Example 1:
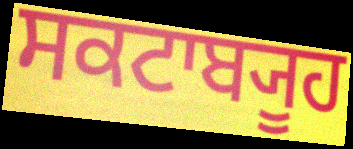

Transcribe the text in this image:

ਸਕਟਾਬ੍ਯੂਹ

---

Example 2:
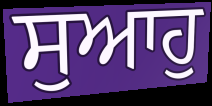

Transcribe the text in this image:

ਸੁਆਹੁ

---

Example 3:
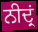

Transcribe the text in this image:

ਨੀਦ੍ਰਂ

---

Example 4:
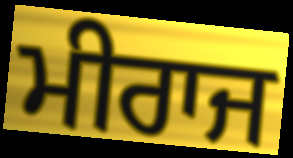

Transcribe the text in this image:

ਮੀਰਾਜ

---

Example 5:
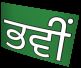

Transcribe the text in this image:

ਭਵੀਂ